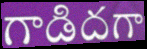
గాడిదగా